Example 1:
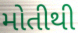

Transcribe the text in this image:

મોતીથી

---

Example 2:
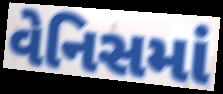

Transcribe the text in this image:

વેનિસમાં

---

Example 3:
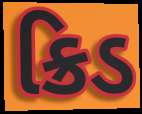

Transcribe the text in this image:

ક્રિડ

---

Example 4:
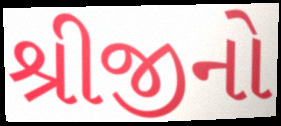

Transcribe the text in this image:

શ્રીજીનો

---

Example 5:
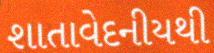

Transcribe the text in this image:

શાતાવેદનીયથી